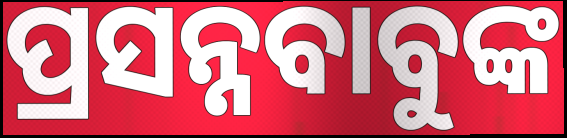
ପ୍ରସନ୍ନବାବୁଙ୍କ